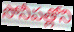
సోనీపత్లోని